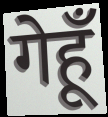
गेहूँ